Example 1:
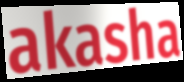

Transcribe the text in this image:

akasha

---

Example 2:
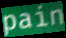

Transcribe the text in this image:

pain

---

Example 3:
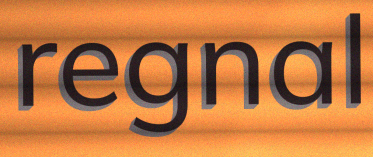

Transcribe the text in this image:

regnal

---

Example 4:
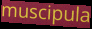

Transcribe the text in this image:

muscipula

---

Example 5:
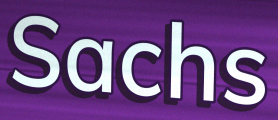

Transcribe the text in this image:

Sachs